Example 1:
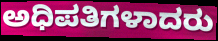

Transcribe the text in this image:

ಅಧಿಪತಿಗಳಾದರು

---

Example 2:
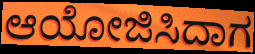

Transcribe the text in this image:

ಆಯೋಜಿಸಿದಾಗ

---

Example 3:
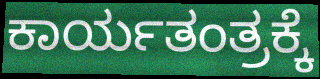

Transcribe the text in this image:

ಕಾರ್ಯತಂತ್ರಕ್ಕೆ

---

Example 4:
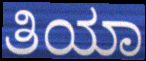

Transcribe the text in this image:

ತಿಯಾ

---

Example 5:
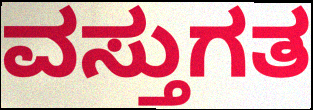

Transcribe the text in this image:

ವಸ್ತುಗತ